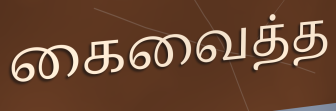
கைவைத்த